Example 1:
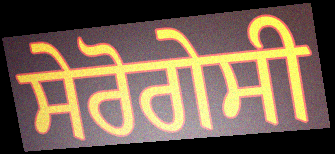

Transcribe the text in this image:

ਸੇਰੋਗੇਸੀ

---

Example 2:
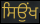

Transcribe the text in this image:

ਸਿਉਂਖ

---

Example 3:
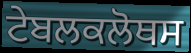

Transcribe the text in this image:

ਟੇਬਲਕਲੋਥਸ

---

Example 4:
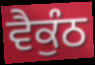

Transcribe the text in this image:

ਵੈਕੁੰਠ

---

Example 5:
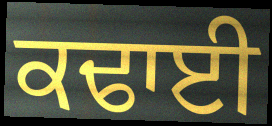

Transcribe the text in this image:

ਕਢਾਈ